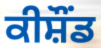
ਕੀਸ਼ੌਂਡ